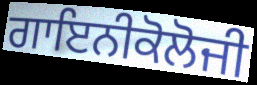
ਗਾਇਨੀਕੋਲੋਜੀ